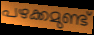
പഴക്കമുണ്ട്